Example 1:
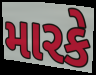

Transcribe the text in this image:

મારકે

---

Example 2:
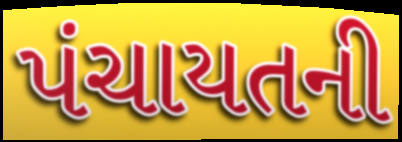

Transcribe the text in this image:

પંચાયતની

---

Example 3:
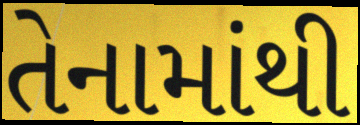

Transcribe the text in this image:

તેનામાંથી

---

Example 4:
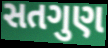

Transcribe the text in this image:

સતગુણ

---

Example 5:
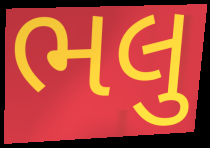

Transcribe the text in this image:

ભલુ